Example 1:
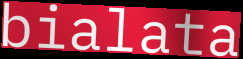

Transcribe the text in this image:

bialata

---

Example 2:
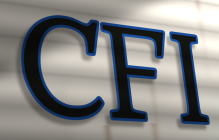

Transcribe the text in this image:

CFI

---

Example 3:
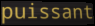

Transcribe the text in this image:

puissant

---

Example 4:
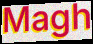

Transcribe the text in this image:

Magh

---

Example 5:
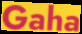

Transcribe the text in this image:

Gaha